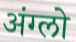
अंग्लो